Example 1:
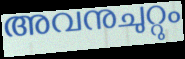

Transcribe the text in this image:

അവനുചുറ്റും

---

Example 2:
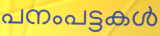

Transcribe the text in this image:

പനംപട്ടകൾ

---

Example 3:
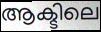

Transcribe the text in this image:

ആക്ടിലെ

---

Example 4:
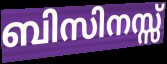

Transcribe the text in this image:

ബിസിനസ്സ്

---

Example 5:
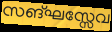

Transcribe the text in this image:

സങ്ഘസ്സേവ